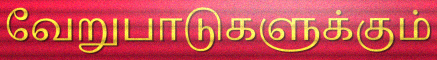
வேறுபாடுகளுக்கும்